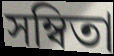
সম্বিতা